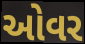
ઓવર